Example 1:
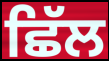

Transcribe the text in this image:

ਛਿੱਲ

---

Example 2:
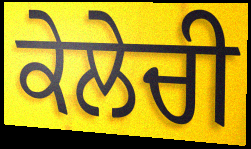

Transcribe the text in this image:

ਕੇਲੇਚੀ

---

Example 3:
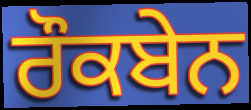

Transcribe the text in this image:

ਰੌਕਬੇਨ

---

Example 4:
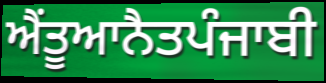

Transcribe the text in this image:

ਐਂਤੂਆਨੈਤਪੰਜਾਬੀ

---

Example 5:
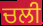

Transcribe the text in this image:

ਚਲੀ